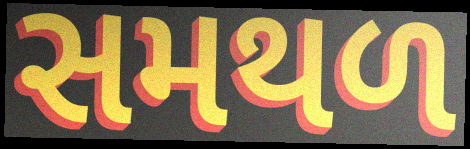
સમથળ